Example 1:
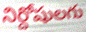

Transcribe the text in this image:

నిర్దోషులగు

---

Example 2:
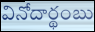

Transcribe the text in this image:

వినోదార్థంబు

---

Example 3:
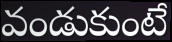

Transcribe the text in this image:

వండుకుంటే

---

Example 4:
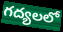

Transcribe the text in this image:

గద్యలలో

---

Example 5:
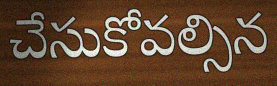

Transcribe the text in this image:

చేసుకోవల్సిన